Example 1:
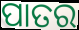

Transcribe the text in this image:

ପାତର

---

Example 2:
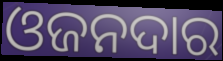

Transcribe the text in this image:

ଓଜନଦାର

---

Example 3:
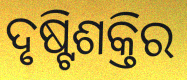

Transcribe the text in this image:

ଦୃଷ୍ଟିଶକ୍ତିର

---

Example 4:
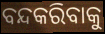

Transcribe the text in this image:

ବନ୍ଦକରିବାକୁ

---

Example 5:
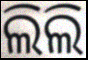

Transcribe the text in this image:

ଲିଲି